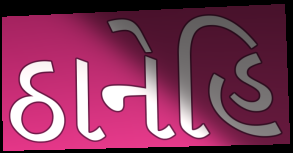
ઠાનેહિ